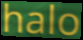
halo